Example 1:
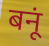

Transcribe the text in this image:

बनूं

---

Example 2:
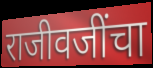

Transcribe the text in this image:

राजीवजींचा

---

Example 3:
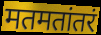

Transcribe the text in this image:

मतमतांतरं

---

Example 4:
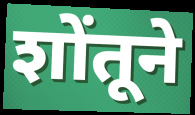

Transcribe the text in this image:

शोंतूने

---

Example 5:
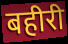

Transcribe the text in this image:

बहीरी